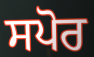
ਸਪੋਰ